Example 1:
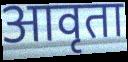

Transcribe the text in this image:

आवृता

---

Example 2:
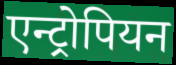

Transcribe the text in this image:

एन्ट्रोपियन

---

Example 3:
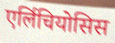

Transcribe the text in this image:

एर्लिचियोसिस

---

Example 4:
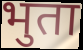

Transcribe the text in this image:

भुता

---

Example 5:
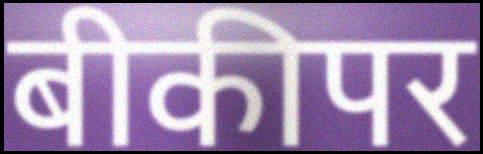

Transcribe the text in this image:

बीकीपर